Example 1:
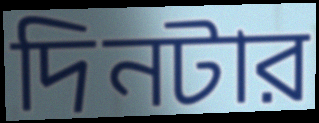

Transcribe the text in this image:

দিনটার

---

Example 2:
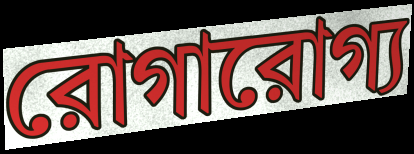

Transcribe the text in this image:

রোগারোগ্য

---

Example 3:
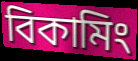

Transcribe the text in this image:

বিকামিং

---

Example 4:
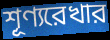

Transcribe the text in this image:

শূণ্যরেখার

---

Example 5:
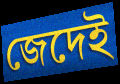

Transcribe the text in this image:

জেদেই